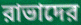
রাভাদের